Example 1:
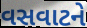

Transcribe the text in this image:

વસવાટને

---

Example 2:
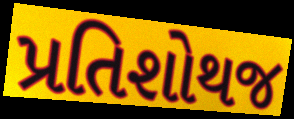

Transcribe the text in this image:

પ્રતિશોથજ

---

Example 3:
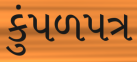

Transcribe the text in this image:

કુંપળપત્ર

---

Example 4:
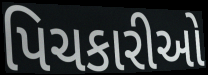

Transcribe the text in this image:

પિચકારીઓ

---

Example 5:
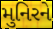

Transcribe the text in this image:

મુનિરને